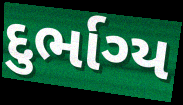
દુર્ભાગ્ય